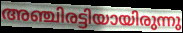
അഞ്ചിരട്ടിയായിരുന്നു